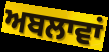
ਅਬਲਾਵਾਂ